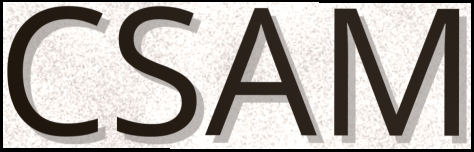
CSAM